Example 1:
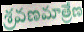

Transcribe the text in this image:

శ్రవణమాత్రేణ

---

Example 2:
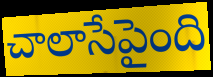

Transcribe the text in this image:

చాలాసేపైంది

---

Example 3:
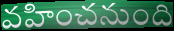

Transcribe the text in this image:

వహించనుంది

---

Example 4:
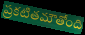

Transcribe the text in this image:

ప్రకటితమౌతోంది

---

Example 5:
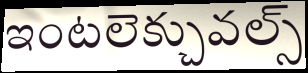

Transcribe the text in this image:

ఇంటలెక్చువల్స్